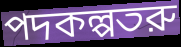
পদকল্পতরু